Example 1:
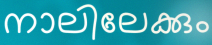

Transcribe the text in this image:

നാലിലേക്കും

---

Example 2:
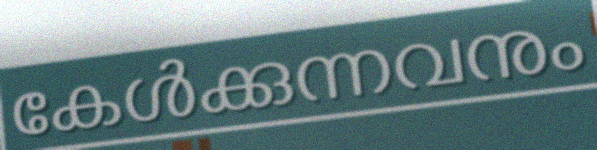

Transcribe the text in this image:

കേൾക്കുന്നവനും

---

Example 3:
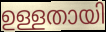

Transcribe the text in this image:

ഉള്ളതായി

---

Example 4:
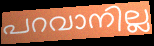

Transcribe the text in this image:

പറവാനില്ല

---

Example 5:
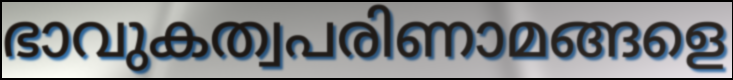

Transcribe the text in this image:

ഭാവുകത്വപരിണാമങ്ങളെ